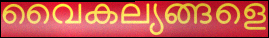
വൈകല്യങ്ങളെ